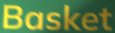
Basket